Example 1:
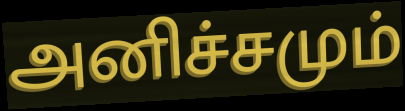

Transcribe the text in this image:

அனிச்சமும்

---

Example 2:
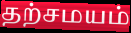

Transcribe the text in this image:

தற்சமயம்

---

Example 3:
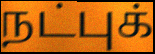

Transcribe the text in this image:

நட்புக்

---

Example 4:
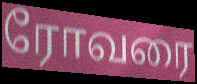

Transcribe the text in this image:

ரோவரை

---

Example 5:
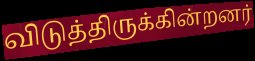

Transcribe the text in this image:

விடுத்திருக்கின்றனர்